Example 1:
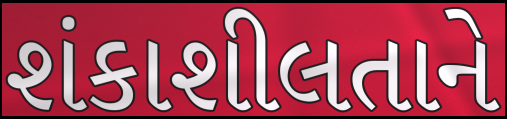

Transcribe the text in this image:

શંકાશીલતાને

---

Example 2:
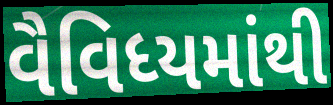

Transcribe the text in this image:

વૈવિધ્યમાંથી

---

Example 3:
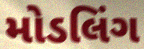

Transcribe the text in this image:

મોડલિંગ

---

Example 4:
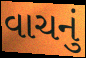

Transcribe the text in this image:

વાચનું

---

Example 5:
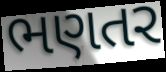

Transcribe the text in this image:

ભણતર